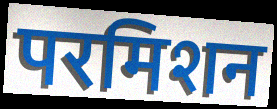
परमिशन